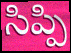
సిప్పి